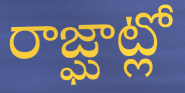
రాజ్ఘాట్లో